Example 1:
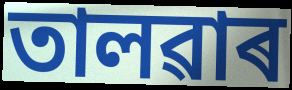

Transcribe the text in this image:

তালৱাৰ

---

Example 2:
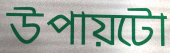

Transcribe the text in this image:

উপায়টো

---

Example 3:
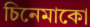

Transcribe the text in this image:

চিনেমাকো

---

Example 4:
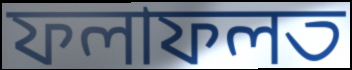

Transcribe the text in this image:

ফলাফলত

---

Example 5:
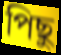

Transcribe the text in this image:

পিছু